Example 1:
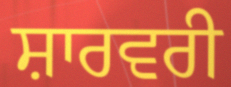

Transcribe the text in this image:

ਸ਼ਾਰਵਰੀ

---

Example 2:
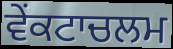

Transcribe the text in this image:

ਵੇਂਕਟਾਚਲਮ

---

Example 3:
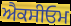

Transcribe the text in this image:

ਐਕਸੀਓਮ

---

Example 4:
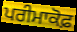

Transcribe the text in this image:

ਪਰੀਮਾਕੋਫ਼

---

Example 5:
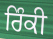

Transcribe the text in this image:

ਰਿੰਕੀ